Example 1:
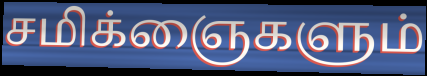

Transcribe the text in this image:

சமிக்ஞைகளும்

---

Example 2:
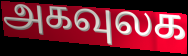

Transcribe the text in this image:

அகவுலக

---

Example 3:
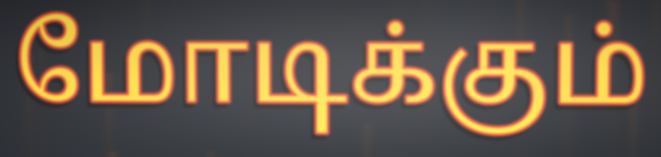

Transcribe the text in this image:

மோடிக்கும்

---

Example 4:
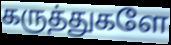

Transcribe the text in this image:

கருத்துகளே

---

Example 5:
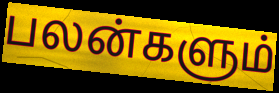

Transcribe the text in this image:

பலன்களும்